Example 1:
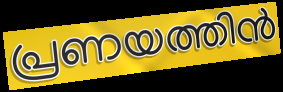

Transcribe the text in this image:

പ്രണയത്തിൻ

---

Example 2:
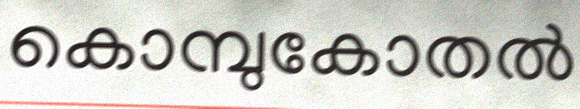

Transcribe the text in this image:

കൊമ്പുകോതൽ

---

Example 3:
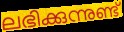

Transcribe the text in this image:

ലഭിക്കുന്നുണ്ട്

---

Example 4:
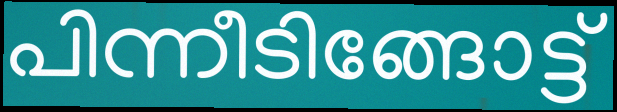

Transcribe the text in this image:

പിന്നീടിങ്ങോട്ട്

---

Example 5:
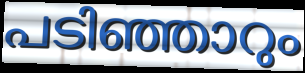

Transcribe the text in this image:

പടിഞ്ഞാറും